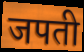
जपती